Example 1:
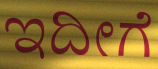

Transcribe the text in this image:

ಇದೀಗೆ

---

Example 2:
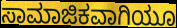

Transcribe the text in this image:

ಸಾಮಾಜಿಕವಾಗಿಯೂ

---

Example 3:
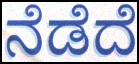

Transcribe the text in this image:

ನೆಡೆದೆ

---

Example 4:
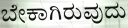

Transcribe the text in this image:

ಬೇಕಾಗಿರುವುದು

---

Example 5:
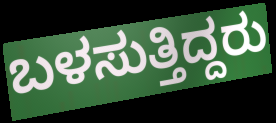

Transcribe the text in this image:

ಬಳಸುತ್ತಿದ್ದರು